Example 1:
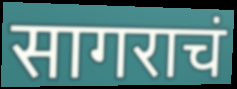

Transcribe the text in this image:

सागराचं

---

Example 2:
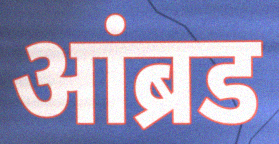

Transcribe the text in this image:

आंब्रड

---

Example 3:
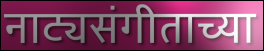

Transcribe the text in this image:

नाट्यसंगीताच्या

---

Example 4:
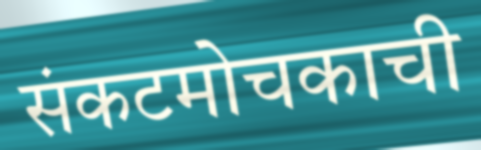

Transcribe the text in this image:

संकटमोचकाची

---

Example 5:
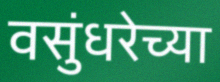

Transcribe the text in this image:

वसुंधरेच्या